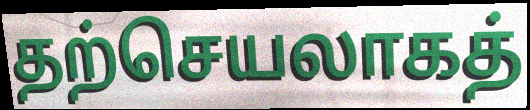
தற்செயலாகத்